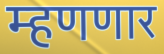
म्हणणार